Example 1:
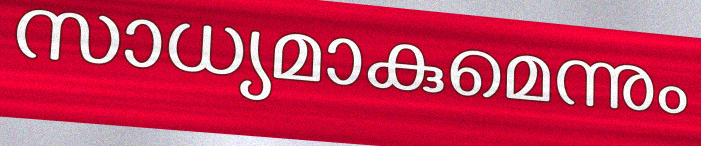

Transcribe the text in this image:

സാധ്യമാകുമെന്നും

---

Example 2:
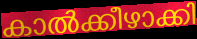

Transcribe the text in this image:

കാൽക്കീഴാക്കി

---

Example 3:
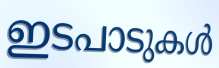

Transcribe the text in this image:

ഇടപാടുകൾ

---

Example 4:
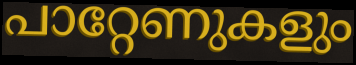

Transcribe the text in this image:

പാറ്റേണുകളും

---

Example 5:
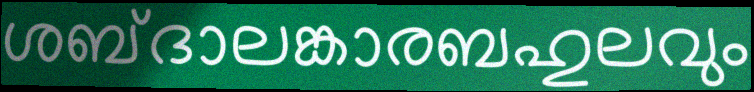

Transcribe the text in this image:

ശബ്ദാലങ്കാരബഹുലവും